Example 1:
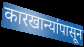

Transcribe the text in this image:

कारखान्यांपासून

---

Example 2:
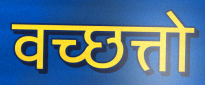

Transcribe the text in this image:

वच्छत्तो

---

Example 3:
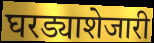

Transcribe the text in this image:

घरड्याशेजारी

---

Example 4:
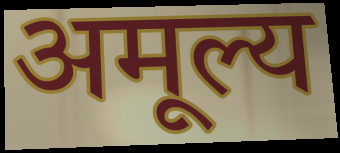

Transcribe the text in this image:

अमूल्य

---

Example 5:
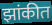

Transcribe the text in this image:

झांकीत